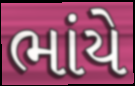
ભાંયે